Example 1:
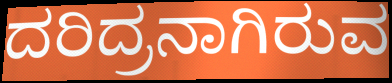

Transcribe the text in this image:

ದರಿದ್ರನಾಗಿರುವ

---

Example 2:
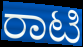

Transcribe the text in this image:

ರಾಟಿ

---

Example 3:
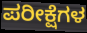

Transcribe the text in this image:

ಪರೀಕ್ಷೆಗಳ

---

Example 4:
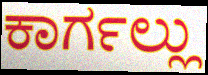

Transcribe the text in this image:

ಕಾರ್ಗಲ್ಲು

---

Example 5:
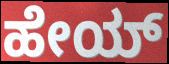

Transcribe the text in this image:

ಹೇಯ್